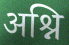
अश्नि